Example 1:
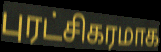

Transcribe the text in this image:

புரட்சிகரமாக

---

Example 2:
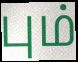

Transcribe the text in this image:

பும்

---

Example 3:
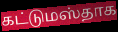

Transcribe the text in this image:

கட்டுமஸ்தாக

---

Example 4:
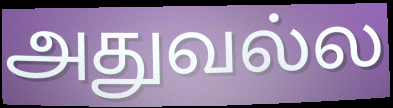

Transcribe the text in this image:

அதுவல்ல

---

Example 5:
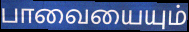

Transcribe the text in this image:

பாவையையும்